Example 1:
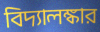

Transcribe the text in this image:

বিদ্যালঙ্কার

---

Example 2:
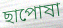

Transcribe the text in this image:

ছাপোষা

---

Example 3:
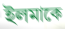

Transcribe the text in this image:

ইলমাকে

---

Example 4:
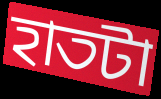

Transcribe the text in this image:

হাতটা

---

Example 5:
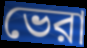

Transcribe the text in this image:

ভেরা